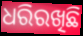
ଧରିରଖିଛି